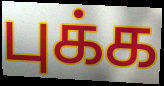
புக்க